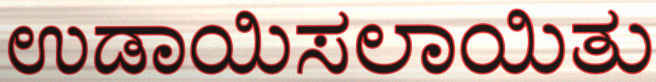
ಉಡಾಯಿಸಲಾಯಿತು